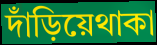
দাঁড়িয়েথাকা